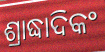
ଶ୍ରାଦ୍ଧାଦିକଂ